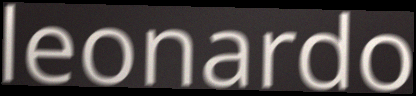
leonardo